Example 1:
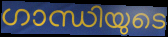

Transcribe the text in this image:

ഗാന്ധിയുടെ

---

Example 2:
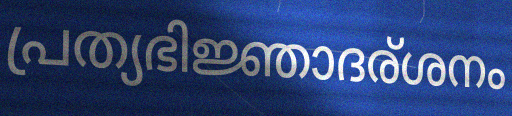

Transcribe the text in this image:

പ്രത്യഭിജ്ഞാദര്ശനം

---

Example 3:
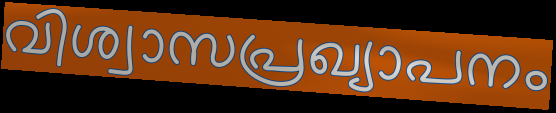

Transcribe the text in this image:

വിശ്വാസപ്രഖ്യാപനം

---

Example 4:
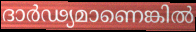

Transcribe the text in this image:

ദാർഢ്യമാണെങ്കിൽ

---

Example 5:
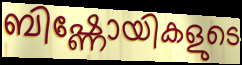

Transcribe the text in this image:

ബിഷ്ണോയികളുടെ